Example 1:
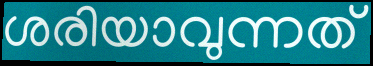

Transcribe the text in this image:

ശരിയാവുന്നത്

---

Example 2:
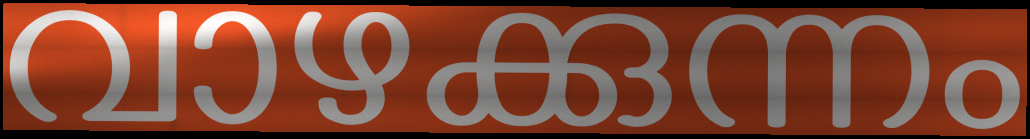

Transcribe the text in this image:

വാഴക്കുന്നം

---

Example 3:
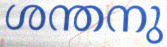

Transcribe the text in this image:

ശന്തനു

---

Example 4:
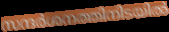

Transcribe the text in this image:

സന്ദർശനത്തിനിടയിൽ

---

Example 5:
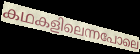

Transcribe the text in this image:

കഥകളിലെന്നപോലെ